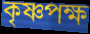
কৃষ্ণপক্ষ